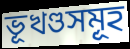
ভূখণ্ডসমূহ